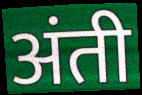
अंती